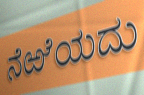
ನೆಱೆಯದು